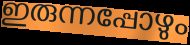
ഇരുന്നപ്പോഴും